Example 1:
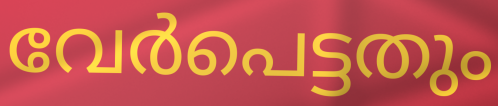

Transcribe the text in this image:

വേർപെട്ടതും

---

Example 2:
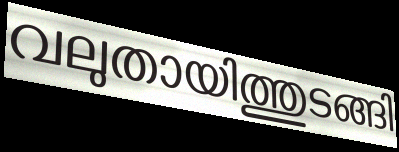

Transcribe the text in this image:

വലുതായിത്തുടങ്ങി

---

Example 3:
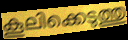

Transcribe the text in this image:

കൂലിക്കെടുത്തു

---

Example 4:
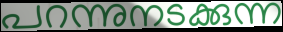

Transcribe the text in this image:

പറന്നുനടക്കുന്ന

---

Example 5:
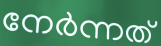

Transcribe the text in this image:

നേർന്നത്